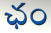
ఛం